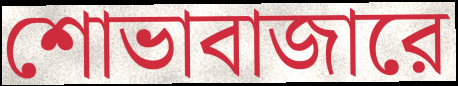
শোভাবাজারে